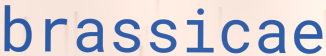
brassicae